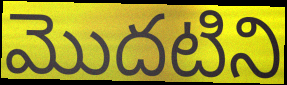
మొదటిని